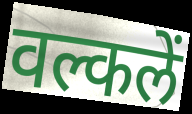
वल्कलें